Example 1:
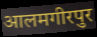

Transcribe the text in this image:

आलमगीरपुर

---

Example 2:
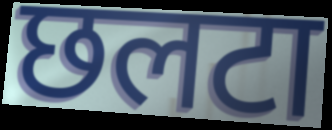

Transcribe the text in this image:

छलटा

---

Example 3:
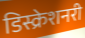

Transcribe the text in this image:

डिस्क्रेशनरी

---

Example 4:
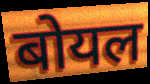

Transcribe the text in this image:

बोयल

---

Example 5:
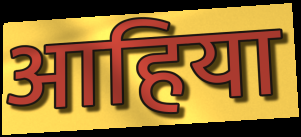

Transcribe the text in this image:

आहिया